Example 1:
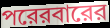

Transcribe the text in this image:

পরেরবারের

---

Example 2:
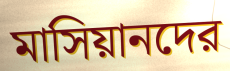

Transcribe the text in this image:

মাসিয়ানদের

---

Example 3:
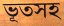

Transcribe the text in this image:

ভূতসহ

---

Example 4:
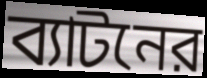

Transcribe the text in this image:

ব্যাটনের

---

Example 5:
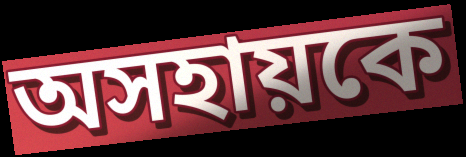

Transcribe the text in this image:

অসহায়কে